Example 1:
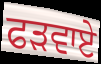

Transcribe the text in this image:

ਫੜਵਾਏ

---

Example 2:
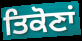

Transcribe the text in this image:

ਤਿਕੋਣਾਂ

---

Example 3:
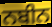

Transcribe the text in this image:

ਨਬੀਨ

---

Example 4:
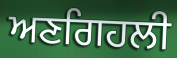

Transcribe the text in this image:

ਅਣਗਿਹਲੀ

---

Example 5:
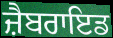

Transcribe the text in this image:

ਜ਼ੈਬਰਾਇਡ